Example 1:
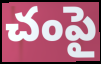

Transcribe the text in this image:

చంపై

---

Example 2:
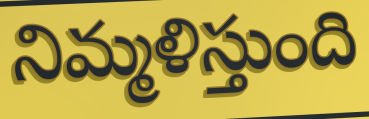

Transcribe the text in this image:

నిమ్మళిస్తుంది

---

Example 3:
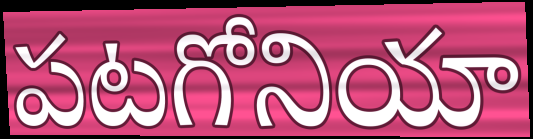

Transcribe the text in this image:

పటగోనియా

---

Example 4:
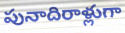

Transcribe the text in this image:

పునాదిరాళ్లుగా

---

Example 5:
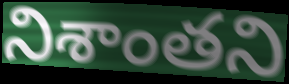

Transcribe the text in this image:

నిశాంతని